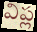
విప్ల